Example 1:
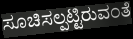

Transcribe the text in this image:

ಸೂಚಿಸಲ್ಪಟ್ಟಿರುವಂತೆ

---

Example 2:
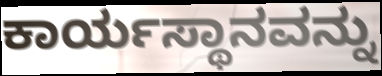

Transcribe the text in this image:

ಕಾರ್ಯಸ್ಥಾನವನ್ನು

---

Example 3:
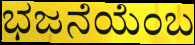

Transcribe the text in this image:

ಭಜನೆಯೆಂಬ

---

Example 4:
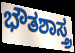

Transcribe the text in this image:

ಭೌತಶಾಸ್ತ್ರ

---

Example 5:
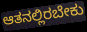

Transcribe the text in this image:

ಆತನಲ್ಲಿರಬೇಕು